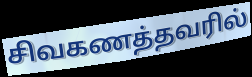
சிவகணத்தவரில்